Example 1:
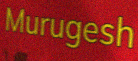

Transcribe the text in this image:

Murugesh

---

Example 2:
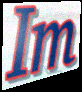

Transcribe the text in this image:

Im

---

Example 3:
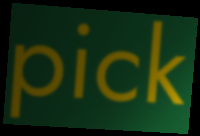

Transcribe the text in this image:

pick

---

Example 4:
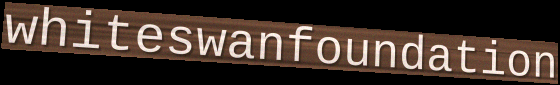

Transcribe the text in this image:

whiteswanfoundation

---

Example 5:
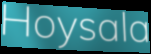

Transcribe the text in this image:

Hoysala